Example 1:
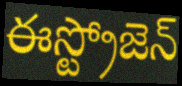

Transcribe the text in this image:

ఈస్ట్రోజెన్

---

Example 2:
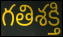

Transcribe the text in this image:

గతిశక్తి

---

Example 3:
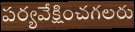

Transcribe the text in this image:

పర్యవేక్షించగలరు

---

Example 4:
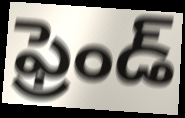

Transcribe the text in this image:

ఫ్రెండ్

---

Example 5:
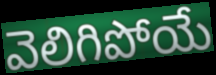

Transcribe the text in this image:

వెలిగిపోయే